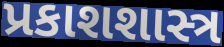
પ્રકાશશાસ્ત્ર